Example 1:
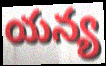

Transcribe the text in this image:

యన్య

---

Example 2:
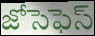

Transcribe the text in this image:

జోసెఫెస్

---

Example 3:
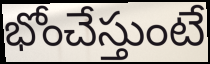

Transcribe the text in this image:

భోంచేస్తుంటే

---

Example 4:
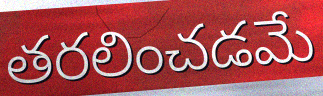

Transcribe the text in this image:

తరలించడమే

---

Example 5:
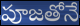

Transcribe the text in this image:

పూజతోనే